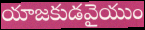
యాజకుడవైయుం